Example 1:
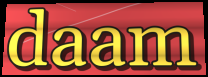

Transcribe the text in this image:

daam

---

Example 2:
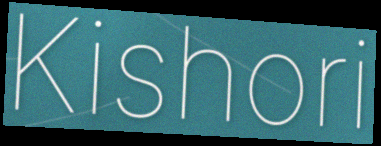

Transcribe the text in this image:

Kishori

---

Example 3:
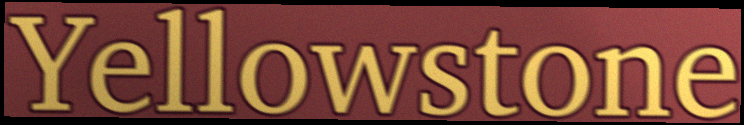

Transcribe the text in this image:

Yellowstone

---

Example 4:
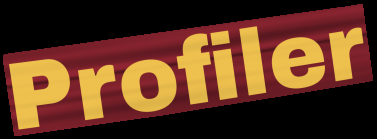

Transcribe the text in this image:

Profiler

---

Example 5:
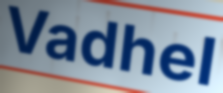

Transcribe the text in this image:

Vadhel